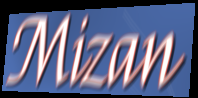
Mizan